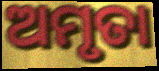
ଅମୃତା